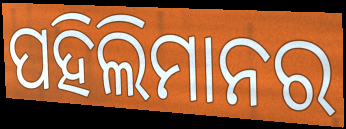
ପହିଲିମାନର